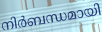
നിർബന്ധമായി